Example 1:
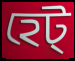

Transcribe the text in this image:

হেট্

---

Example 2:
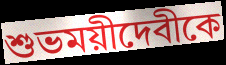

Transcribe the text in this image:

শুভময়ীদেবীকে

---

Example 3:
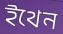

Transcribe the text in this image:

ইথেন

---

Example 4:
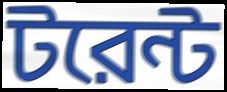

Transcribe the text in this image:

টরেন্ট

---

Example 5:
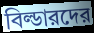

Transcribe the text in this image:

বিল্ডারদের